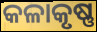
କଳାକୃଷ୍ଣ